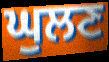
ਘੁਲਣ